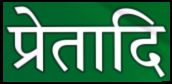
प्रेतादि